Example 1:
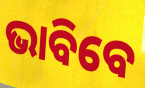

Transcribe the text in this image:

ଭାବିବେ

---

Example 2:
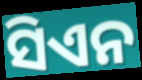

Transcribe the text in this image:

ସିଏନ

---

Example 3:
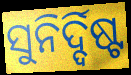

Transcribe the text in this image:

ସୁନିର୍ଦ୍ଦିଷ୍ଟ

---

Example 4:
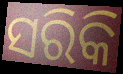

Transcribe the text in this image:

ସରିକି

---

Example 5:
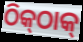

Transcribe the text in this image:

ଠିକ୍‌ଠାକ୍